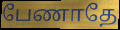
பேணாதே